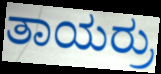
ತಾಯರ್ರು